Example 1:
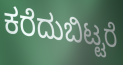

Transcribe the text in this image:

ಕರೆದುಬಿಟ್ಟರೆ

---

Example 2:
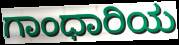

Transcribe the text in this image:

ಗಾಂಧಾರಿಯ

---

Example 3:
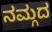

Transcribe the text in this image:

ನಮ್ಗದ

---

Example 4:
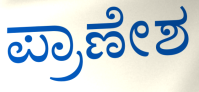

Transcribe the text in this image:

ಪ್ರಾಣೇಶ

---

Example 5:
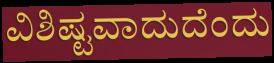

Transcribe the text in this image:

ವಿಶಿಷ್ಟವಾದುದೆಂದು